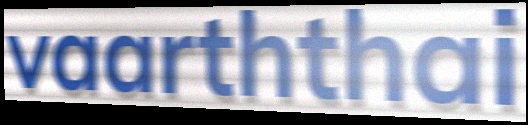
vaarththai